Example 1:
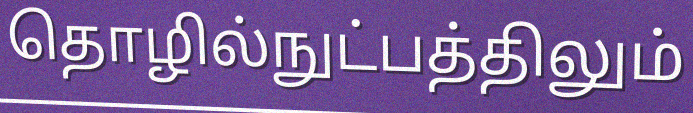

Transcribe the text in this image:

தொழில்நுட்பத்திலும்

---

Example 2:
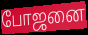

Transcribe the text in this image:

போஜனை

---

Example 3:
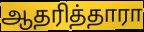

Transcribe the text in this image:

ஆதரித்தாரா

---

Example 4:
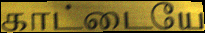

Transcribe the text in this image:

காட்டையே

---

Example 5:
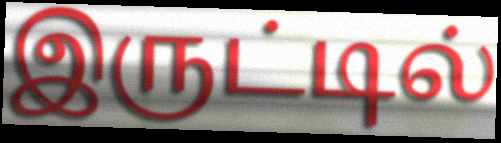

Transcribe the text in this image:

இருட்டில்